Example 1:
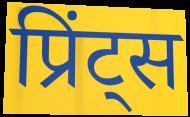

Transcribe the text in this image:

प्रिंट्स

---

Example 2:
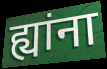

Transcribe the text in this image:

ह्यांना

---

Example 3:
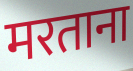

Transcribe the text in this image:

मरताना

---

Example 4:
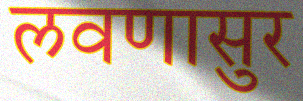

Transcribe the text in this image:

लवणासुर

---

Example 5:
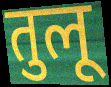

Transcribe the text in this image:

तुलू